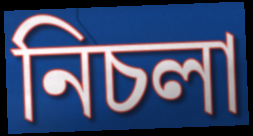
নিচলা